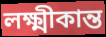
লক্ষ্মীকান্ত